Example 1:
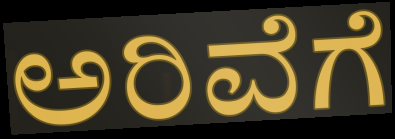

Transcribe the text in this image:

ಅರಿವೆಗೆ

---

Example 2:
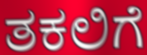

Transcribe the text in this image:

ತಕಲಿಗೆ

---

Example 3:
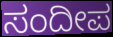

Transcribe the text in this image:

ಸಂದೀಪ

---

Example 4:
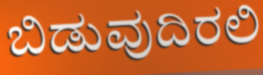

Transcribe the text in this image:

ಬಿಡುವುದಿರಲಿ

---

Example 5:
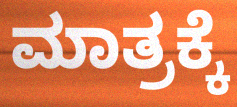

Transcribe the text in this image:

ಮಾತ್ರಕ್ಕೆ